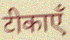
टीकाएँ